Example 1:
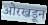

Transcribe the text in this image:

ओरखडून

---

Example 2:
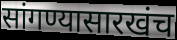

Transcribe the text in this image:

सांगण्यासारखंच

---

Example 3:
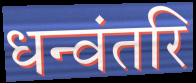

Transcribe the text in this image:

धन्वंतरि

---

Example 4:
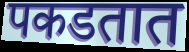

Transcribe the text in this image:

पकडतात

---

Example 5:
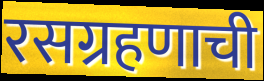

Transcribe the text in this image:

रसग्रहणाची